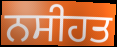
ਨਸੀਹਤ